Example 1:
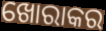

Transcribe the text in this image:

ଖୋରାକର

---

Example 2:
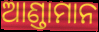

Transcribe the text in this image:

ଆଣ୍ଡାମାନ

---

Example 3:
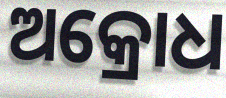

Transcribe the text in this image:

ଅକ୍ରୋଧ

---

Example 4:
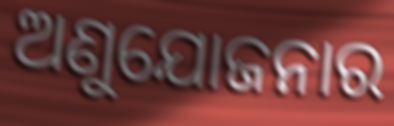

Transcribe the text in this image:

ଅଣୁଯୋଜନାର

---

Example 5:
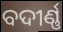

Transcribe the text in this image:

ବଦୀର୍ଣ୍ଣ